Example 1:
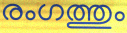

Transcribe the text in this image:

രംഗത്തും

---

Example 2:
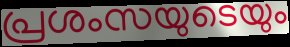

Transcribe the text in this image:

പ്രശംസയുടെയും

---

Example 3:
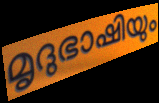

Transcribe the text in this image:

മൃദുഭാഷിയും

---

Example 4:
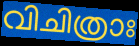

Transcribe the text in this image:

വിചിത്രാഃ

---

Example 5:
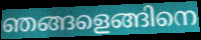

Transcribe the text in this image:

ഞങ്ങളെങ്ങിനെ